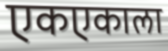
एकएकाला